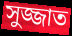
সুজ্জাত